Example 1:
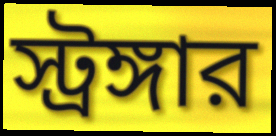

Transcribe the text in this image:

স্ট্রঙ্গার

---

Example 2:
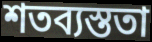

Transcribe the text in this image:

শতব্যস্ততা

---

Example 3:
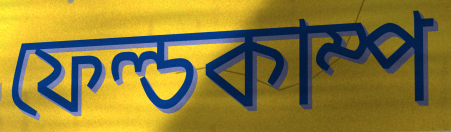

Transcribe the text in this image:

ফেল্ডকাম্প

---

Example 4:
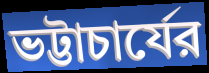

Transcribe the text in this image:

ভট্টাচার্যের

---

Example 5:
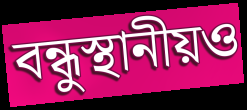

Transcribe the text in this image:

বন্ধুস্থানীয়ও